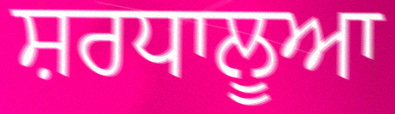
ਸ਼ਰਧਾਲੂਆ